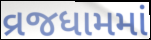
વ્રજધામમાં